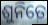
ଶୁନିତେ